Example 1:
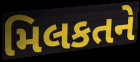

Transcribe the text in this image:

મિલકતને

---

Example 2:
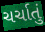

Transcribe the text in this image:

ચર્ચાતું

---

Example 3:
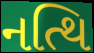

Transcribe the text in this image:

નત્થિ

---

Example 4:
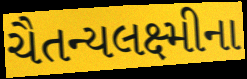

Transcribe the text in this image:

ચૈતન્યલક્ષ્મીના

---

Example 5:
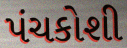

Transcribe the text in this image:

પંચકોશી